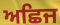
ਅਛਿਜ